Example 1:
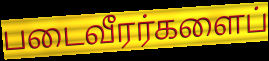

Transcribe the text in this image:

படைவீரர்களைப்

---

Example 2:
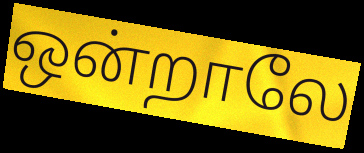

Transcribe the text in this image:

ஒன்றாலே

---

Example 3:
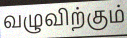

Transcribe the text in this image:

வழுவிற்கும்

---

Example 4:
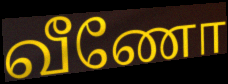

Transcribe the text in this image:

வீணோ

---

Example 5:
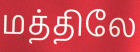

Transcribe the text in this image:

மத்திலே